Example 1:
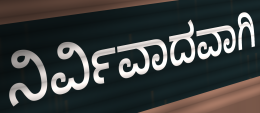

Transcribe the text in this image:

ನಿರ್ವಿವಾದವಾಗಿ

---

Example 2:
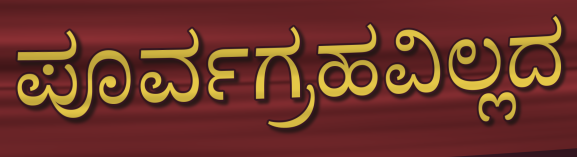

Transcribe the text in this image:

ಪೂರ್ವಗ್ರಹವಿಲ್ಲದ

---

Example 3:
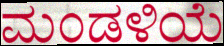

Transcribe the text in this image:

ಮಂಡಳಿಯೆ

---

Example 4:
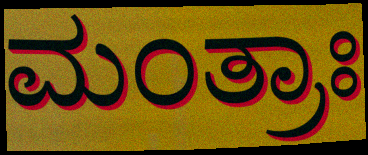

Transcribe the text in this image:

ಮಂತ್ರಾಃ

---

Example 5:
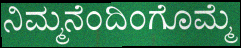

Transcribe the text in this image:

ನಿಮ್ಮನೆಂದಿಂಗೊಮ್ಮೆ